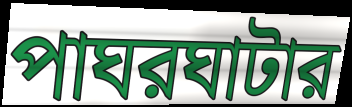
পাঘরঘাটার